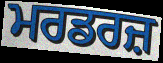
ਮਰਡਰਜ਼